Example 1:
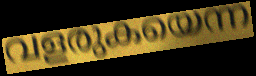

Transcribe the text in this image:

വളരുകയെന്ന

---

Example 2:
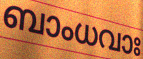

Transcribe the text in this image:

ബാംധവാഃ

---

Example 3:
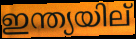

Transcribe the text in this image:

ഇന്ത്യയില്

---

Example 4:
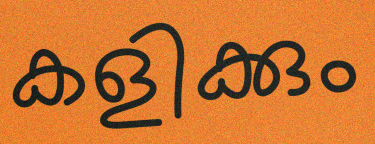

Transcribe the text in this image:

കളിക്കും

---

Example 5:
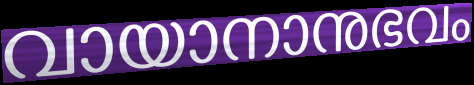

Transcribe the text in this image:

വായാനാനുഭവം